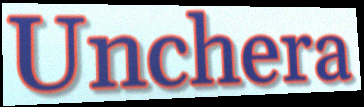
Unchera